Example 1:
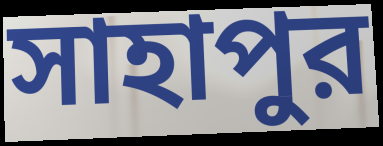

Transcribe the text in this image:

সাহাপুর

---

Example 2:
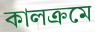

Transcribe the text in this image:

কালক্রমে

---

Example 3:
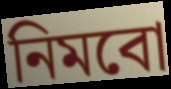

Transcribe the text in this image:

নিমবো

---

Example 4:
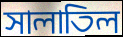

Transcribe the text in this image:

সালাতিল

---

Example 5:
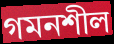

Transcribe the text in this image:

গমনশীল